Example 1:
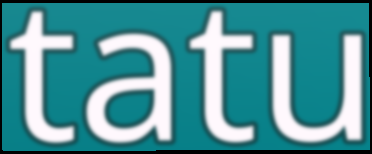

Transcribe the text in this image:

tatu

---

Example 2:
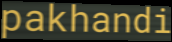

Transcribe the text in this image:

pakhandi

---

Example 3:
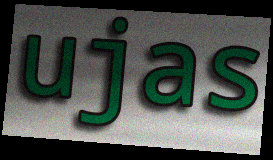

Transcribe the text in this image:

ujas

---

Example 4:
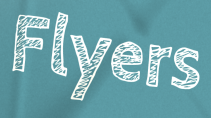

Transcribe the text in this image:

Flyers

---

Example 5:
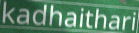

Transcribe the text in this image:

kadhaithari